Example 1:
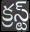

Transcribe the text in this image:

క్రస్ట్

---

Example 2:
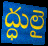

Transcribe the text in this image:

ద్ధులై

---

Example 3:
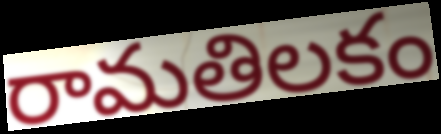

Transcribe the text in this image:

రామతిలకం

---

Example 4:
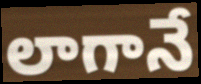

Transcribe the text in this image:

లాగానే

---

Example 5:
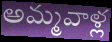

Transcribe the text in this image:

అమ్మవాళ్ల